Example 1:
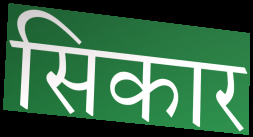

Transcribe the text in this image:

सिकार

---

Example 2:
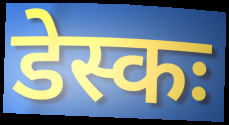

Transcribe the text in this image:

डेस्कः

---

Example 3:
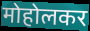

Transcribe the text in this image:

मोहोलकर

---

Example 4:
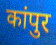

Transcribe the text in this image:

कांपुर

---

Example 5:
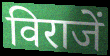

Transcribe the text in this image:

विराजें